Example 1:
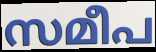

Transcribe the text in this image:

സമീപ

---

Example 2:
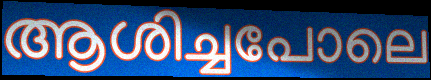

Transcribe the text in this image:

ആശിച്ചപോലെ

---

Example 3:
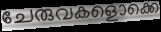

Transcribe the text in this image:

ചേരുവകളൊക്കെ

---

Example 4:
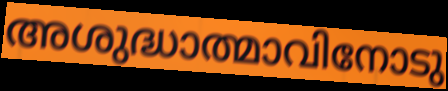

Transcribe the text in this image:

അശുദ്ധാത്മാവിനോടു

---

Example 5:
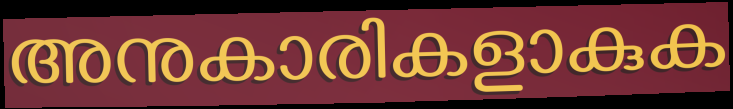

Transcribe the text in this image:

അനുകാരികളാകുക